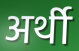
अर्थी